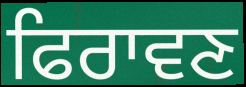
ਫਿਰਾਵਣ